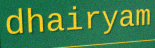
dhairyam